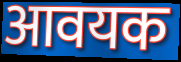
आवयक